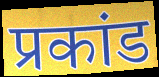
प्रकांड